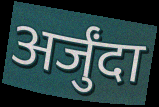
अर्जुंदा